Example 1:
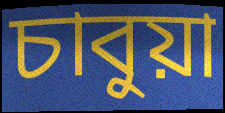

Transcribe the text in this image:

চাবুয়া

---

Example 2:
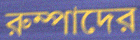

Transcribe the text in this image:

রুম্পাদের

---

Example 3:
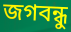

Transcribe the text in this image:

জগবন্ধু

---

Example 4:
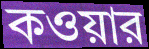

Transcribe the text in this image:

কওয়ার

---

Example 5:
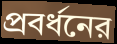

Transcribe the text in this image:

প্রবর্ধনের